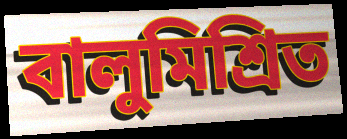
বালুমিশ্রিত